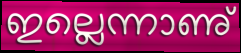
ഇല്ലെന്നാണു്